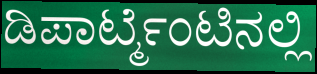
ಡಿಪಾರ್ಟ್ಮೆಂಟಿನಲ್ಲಿ